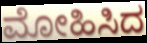
ಮೋಹಿಸಿದ